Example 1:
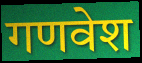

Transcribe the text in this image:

गणवेश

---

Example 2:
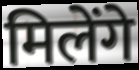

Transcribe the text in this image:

मिलेंगे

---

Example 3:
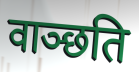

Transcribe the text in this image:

वाञ्छति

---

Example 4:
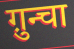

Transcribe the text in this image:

ग़ुन्चा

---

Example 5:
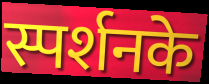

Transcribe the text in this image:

स्पर्शनके